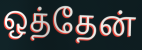
ஒத்தேன்